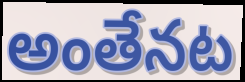
అంతేనట